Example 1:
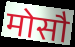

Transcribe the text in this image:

मोसौ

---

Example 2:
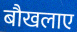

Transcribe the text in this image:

बौखलाए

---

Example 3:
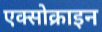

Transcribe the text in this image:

एक्सोक्राइन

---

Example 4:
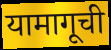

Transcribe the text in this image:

यामागूची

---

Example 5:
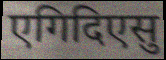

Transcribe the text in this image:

एगिदिएसु